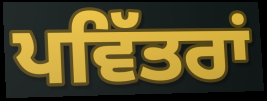
ਪਵਿੱਤਰਾਂ